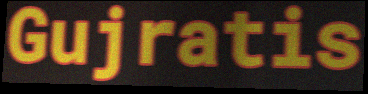
Gujratis